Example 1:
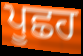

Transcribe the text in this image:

ਪੂਛਹ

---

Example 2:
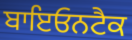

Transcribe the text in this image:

ਬਾਇਓਨਟੈਕ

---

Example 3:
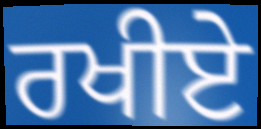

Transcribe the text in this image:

ਰਖੀਏ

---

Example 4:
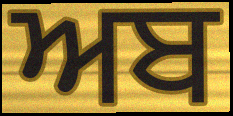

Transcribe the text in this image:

ਅਬ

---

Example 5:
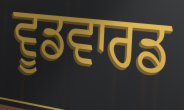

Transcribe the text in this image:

ਵੂਡਵਾਰਡ